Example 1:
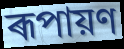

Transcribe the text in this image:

ৰূপায়ণ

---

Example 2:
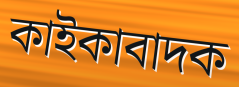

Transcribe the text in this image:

কাইকাবাদক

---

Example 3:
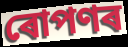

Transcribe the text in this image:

ৰোপণৰ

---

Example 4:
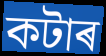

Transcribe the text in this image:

কটাৰ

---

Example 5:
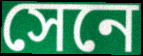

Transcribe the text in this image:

সেনে